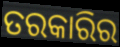
ତରକାରିର